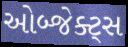
ઓબ્જેક્ટ્સ